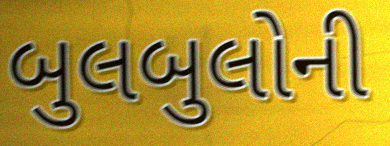
બુલબુલોની